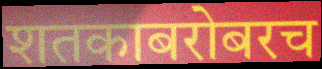
शतकाबरोबरच